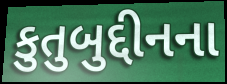
કુતુબુદ્દીનના